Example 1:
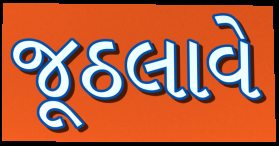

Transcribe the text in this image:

જૂઠલાવે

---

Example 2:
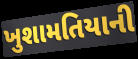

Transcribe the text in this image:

ખુશામતિયાની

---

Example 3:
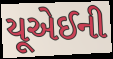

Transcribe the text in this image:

યૂએઈની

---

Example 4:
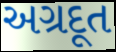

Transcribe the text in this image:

અગ્રદૂત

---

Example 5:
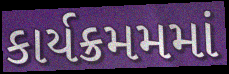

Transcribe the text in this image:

કાર્યક્રમમમાં